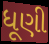
ધૂણી